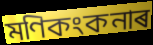
মণিকংকনাৰ